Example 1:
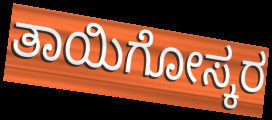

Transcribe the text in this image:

ತಾಯಿಗೋಸ್ಕರ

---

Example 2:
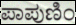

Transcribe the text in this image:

ಪಾಪುಣಿಂ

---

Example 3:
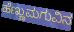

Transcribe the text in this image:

ಹೆಣ್ಣುಮಗುವಿನ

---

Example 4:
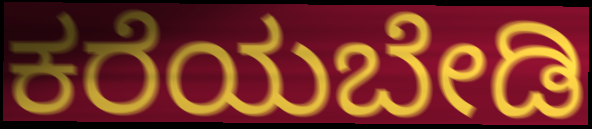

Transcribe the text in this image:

ಕರೆಯಬೇಡಿ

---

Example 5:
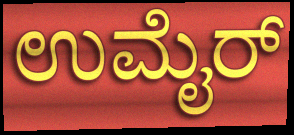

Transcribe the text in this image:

ಉಮೈರ್